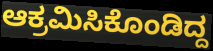
ಆಕ್ರಮಿಸಿಕೊಂಡಿದ್ದ